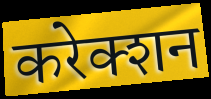
करेक्शन